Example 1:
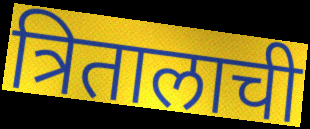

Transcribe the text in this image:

त्रितालाची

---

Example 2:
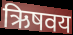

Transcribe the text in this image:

ऋिषवय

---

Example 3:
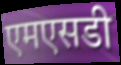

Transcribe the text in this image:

एमएसडी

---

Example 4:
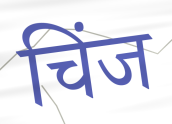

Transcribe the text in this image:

चिंज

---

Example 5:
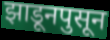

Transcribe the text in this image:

झाडूनपुसून